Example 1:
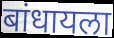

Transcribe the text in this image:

बांधायला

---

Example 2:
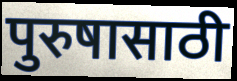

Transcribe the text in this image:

पुरुषासाठी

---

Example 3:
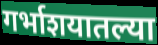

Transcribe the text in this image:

गर्भाशयातल्या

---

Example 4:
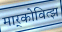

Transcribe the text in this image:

मार्कोवित्झ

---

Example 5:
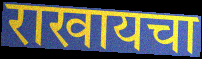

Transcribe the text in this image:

राखायचा